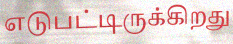
எடுபட்டிருக்கிறது